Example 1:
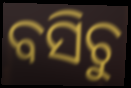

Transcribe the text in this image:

ବସିଚୁ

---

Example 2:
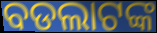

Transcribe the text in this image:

ବଡଲାଟଙ୍କ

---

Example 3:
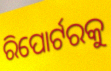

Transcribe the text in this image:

ରିପୋର୍ଟରକୁ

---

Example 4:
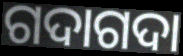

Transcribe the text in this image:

ଗଦାଗଦା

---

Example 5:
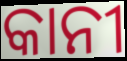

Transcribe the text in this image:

କାନୀ